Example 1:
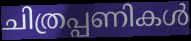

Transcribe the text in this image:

ചിത്രപ്പണികൾ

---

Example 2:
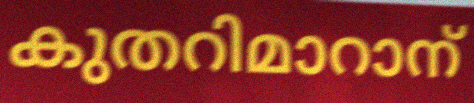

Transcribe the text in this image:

കുതറിമാറാന്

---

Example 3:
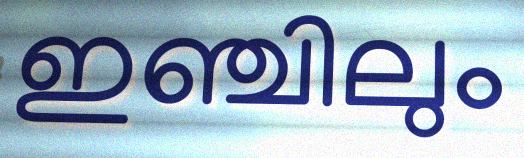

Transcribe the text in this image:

ഇഞ്ചിലും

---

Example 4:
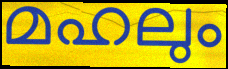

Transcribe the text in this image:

മഹലും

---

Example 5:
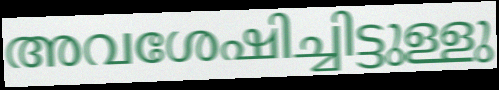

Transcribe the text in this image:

അവശേഷിച്ചിട്ടുള്ളു